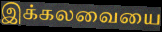
இக்கலவையை